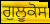
ਗੁਲੂਕੋਸ